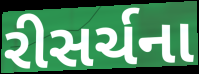
રીસર્ચના